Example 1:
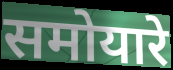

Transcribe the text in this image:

समोयारे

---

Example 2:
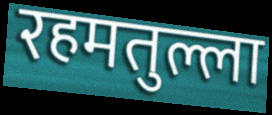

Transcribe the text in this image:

रहमतुल्ला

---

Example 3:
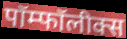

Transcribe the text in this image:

पॉम्फॉलीक्स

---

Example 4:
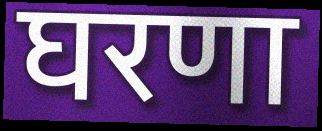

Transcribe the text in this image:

घरणा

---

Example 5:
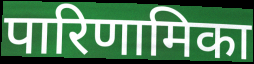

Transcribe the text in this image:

पारिणामिका